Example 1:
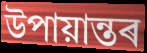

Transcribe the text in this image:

উপায়ান্তৰ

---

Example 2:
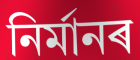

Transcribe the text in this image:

নিৰ্মানৰ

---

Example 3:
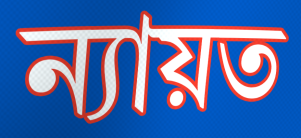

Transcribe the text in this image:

ন্যায়ত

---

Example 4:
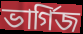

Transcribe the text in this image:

ভাৰ্গিজ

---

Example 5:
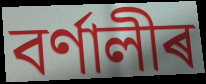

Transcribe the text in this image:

বৰ্ণালীৰ